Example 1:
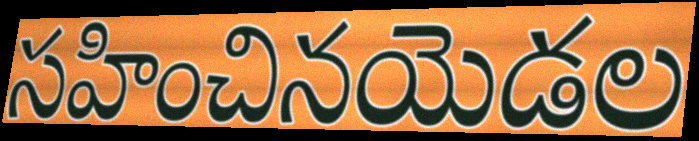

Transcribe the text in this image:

సహించినయెడల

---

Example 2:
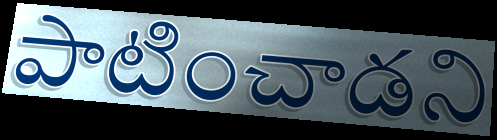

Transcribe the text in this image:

పాటించాడని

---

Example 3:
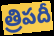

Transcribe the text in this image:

త్రిపదీ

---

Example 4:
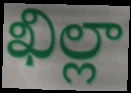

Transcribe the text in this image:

ఖిల్లా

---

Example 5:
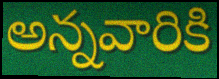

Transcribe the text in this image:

అన్నవారికి